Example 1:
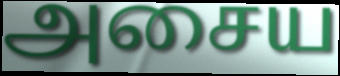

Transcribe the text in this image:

அசைய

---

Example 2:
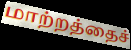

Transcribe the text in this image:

மாற்றத்தைச்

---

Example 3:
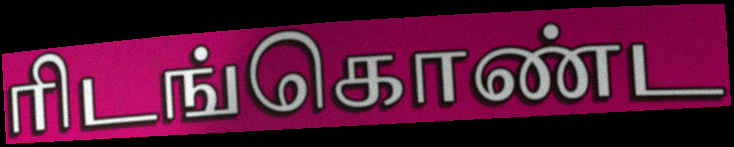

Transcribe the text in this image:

ரிடங்கொண்ட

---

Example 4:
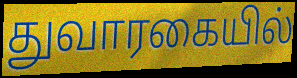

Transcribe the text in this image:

துவாரகையில்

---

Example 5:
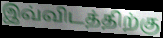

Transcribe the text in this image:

இவ்விடத்திற்கு